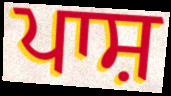
ਪਾਸ਼